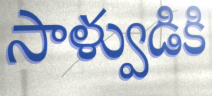
సాళ్వుడికి